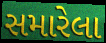
સમારેલા